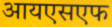
आयएसएफ